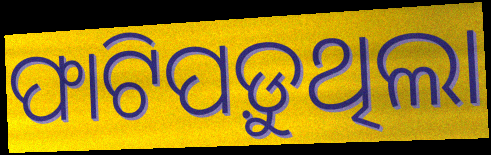
ଫାଟିପଡ଼ୁଥିଲା